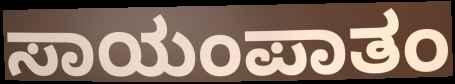
ಸಾಯಂಪಾತಂ